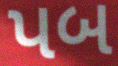
પબ